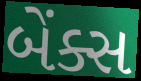
બેંક્સ